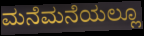
ಮನೆಮನೆಯಲ್ಲೂ